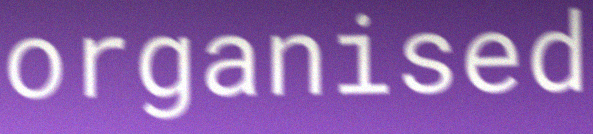
organised